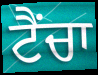
ਟੈਂਚਾ